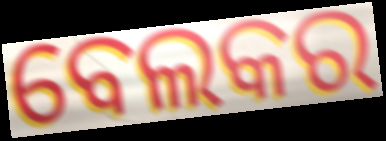
ବେଲକର